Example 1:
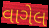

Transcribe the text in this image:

વાગેલ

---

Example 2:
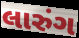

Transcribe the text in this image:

લારુંગ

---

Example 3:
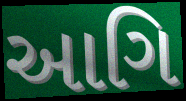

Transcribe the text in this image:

આગિ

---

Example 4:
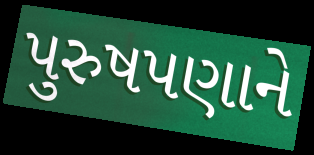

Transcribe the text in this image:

પુરુષપણાને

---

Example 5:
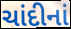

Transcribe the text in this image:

ચાંદીનાં